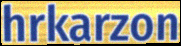
hrkarzon